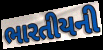
ભારતીયની